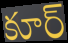
కూర్